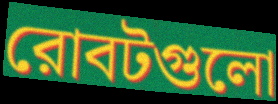
রোবটগুলো